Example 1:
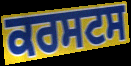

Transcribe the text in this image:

ਕਰਸਟਸ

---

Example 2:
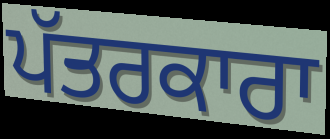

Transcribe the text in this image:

ਪੱਤਰਕਾਰਾ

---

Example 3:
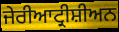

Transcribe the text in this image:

ਜੇਰੀਆਟ੍ਰੀਸ਼ੀਅਨ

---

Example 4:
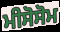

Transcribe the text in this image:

ਮੀਸੋਸੋਮ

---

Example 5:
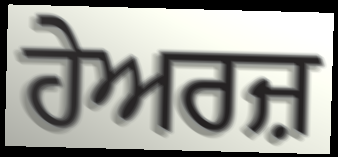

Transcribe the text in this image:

ਹੇਅਰਜ਼